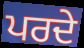
ਪਰਦੇ